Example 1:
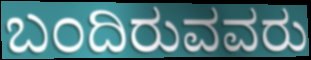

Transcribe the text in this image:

ಬಂದಿರುವವರು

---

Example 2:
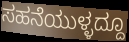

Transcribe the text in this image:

ಸಹನೆಯುಳ್ಳದ್ದೂ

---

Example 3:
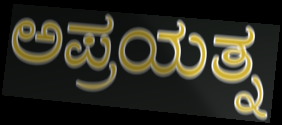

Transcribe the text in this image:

ಅಪ್ರಯತ್ನ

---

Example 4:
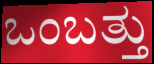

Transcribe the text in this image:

ಒಂಬತ್ತು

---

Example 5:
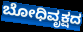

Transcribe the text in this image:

ಬೋಧಿವೃಕ್ಷದ